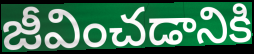
జీవించడానికి